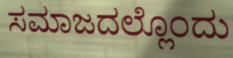
ಸಮಾಜದಲ್ಲೊಂದು